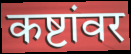
कष्टांवर